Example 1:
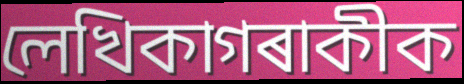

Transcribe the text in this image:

লেখিকাগৰাকীক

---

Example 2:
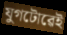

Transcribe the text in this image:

যুগটোৱেই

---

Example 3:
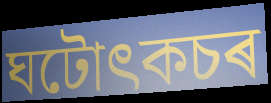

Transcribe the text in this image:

ঘটোৎকচৰ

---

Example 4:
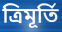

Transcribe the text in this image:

ত্ৰিমূৰ্তি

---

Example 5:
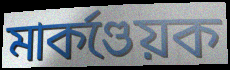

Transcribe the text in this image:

মাৰ্কণ্ডেয়ক